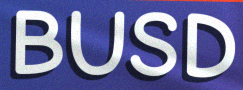
BUSD